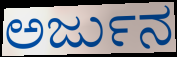
ಅರ್ಜುನ